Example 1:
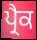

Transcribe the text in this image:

ਪ੍ਰੈਕ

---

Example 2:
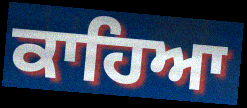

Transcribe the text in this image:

ਕਾਹਿਆ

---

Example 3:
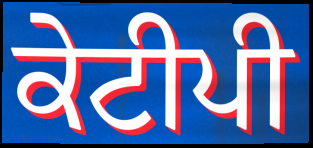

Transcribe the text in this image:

ਕੇਟੀਪੀ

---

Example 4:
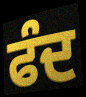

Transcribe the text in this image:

ਫੰਦ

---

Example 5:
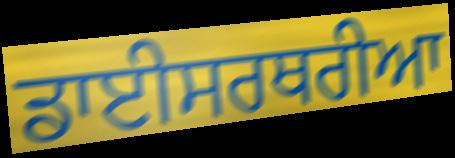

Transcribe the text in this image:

ਡਾਈਸਰਥਰੀਆ